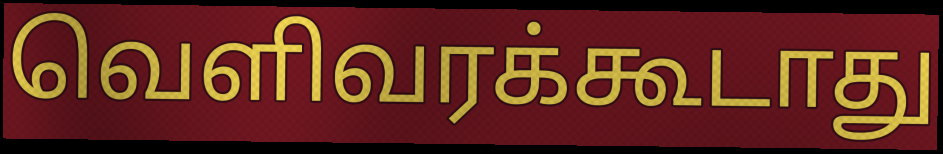
வெளிவரக்கூடாது